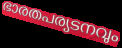
ഭാരതപര്യടനവും